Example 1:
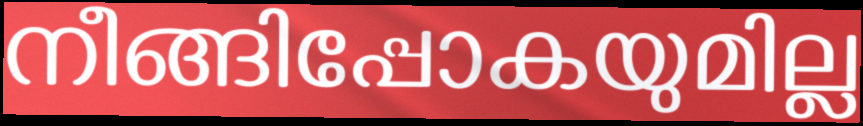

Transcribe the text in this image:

നീങ്ങിപ്പോകയുമില്ല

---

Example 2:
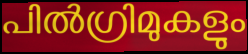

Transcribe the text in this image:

പിൽഗ്രിമുകളും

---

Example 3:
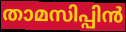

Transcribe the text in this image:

താമസിപ്പിൻ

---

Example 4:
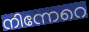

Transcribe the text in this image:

നിന്നേറെ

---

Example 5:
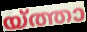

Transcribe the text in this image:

യ്ത്താ